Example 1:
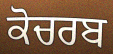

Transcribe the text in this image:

ਕੋਚਰਬ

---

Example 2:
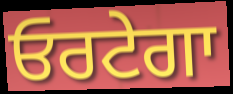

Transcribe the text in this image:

ਓਰਟੇਗਾ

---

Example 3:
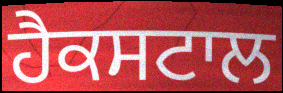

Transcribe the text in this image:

ਹੈਕਸਟਾਲ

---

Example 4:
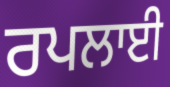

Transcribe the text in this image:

ਰਪਲਾਈ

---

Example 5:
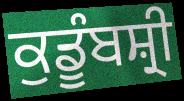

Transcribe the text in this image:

ਕੁਡੂੰਬਸ਼੍ਰੀ